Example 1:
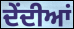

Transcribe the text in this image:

ਦੇਂਦੀਆਂ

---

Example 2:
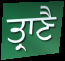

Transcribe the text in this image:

ਤ੍ਰਾਣੈ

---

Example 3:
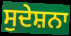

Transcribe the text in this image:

ਸੁਦੇਸ਼ਨਾ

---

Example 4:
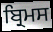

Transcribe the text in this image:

ਬ੍ਰਿਮਸ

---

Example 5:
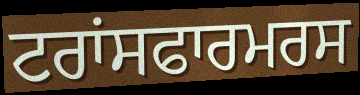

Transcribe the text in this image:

ਟਰਾਂਸਫਾਰਮਰਸ